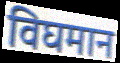
विघमान